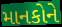
માનકોને